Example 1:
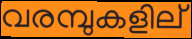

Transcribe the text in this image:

വരമ്പുകളില്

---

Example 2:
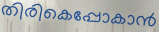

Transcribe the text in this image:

തിരികെപ്പോകാൻ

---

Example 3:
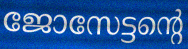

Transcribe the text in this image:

ജോസേട്ടന്റെ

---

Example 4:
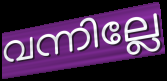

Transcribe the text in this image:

വന്നില്ലേ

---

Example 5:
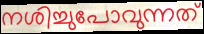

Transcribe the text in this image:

നശിച്ചുപോവുന്നത്